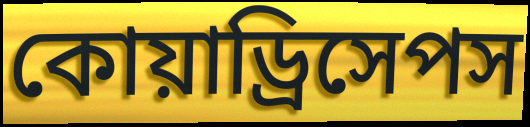
কোয়াড্রিসেপস